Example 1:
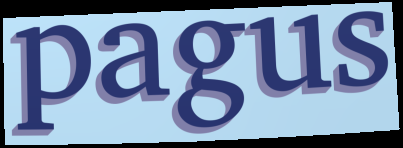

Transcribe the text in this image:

pagus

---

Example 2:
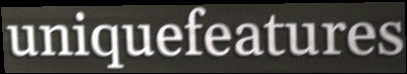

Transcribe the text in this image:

uniquefeatures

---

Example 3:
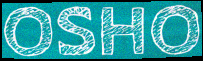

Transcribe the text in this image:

OSHO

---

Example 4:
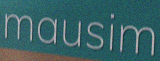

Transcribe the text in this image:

mausim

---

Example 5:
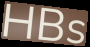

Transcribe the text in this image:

HBs